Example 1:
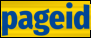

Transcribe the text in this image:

pageid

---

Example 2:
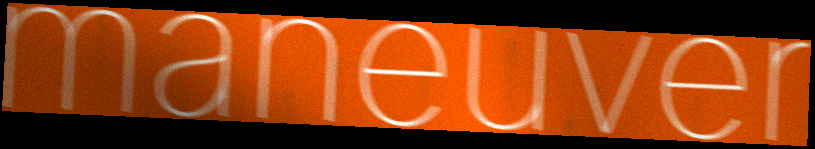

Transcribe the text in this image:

maneuver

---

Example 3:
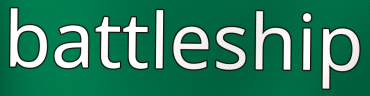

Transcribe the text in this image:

battleship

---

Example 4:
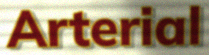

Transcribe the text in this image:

Arterial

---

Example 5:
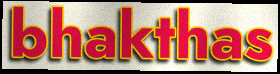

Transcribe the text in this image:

bhakthas